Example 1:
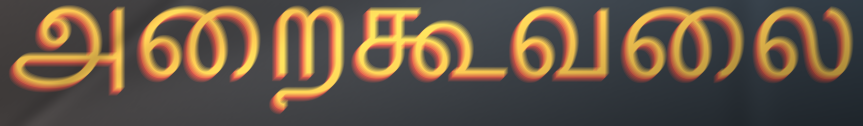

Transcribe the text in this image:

அறைகூவலை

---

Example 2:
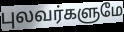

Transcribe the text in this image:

புலவர்களுமே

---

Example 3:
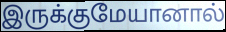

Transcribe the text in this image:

இருக்குமேயானால்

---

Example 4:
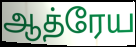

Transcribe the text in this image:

ஆத்ரேய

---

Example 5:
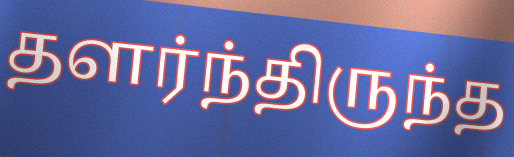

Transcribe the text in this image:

தளர்ந்திருந்த